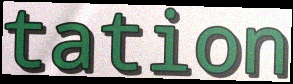
tation